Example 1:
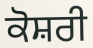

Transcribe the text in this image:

ਕੋਸ਼ਰੀ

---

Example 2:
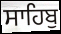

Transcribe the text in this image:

ਸਾਹਿਬੁ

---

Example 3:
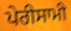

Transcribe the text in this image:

ਪੇਰੀਸਾਮੀ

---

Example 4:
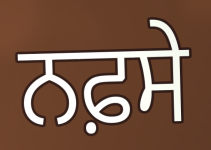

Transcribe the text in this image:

ਨਫ਼ਸੇ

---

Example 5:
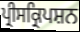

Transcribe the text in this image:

ਪ੍ਰੀਸਕ੍ਰਿਪਸ਼ਨ